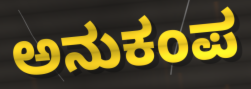
ಅನುಕಂಪ